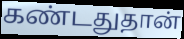
கண்டதுதான்